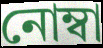
নোম্বা